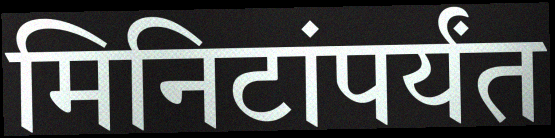
मिनिटांपर्यंत